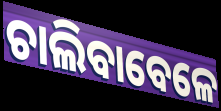
ଚାଲିବାବେଳେ